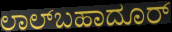
ಲಾಲ್‌ಬಹಾದೂರ್